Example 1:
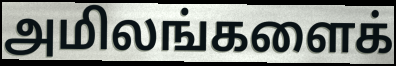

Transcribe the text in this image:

அமிலங்களைக்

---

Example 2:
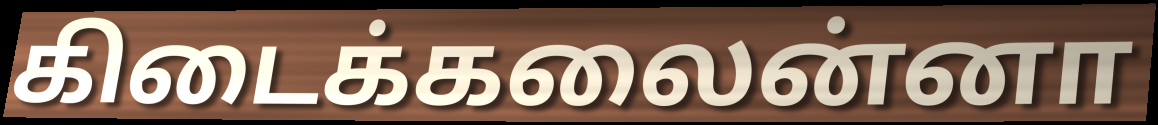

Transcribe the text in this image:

கிடைக்கலைன்னா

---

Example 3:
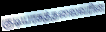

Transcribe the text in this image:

குடியரசுத்தலைவரின்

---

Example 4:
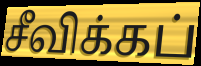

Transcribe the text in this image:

சீவிக்கப்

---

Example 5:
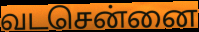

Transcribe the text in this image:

வடசென்னை